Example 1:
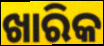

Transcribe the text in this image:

ଖାରିକ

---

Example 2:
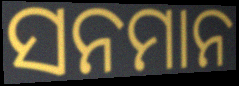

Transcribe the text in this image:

ସନମାନ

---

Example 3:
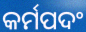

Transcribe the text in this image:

କର୍ମପଦଂ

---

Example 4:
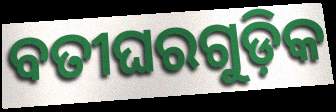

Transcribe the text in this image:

ବତୀଘରଗୁଡ଼ିକ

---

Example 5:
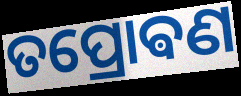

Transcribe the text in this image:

ତପ୍ରୋଵଣ